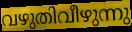
വഴുതിവീഴുന്നു